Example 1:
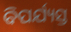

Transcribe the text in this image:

ବିପର୍ଯ୍ୟସ୍ତ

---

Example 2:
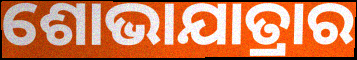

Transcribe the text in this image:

ଶୋଭାଯାତ୍ରାର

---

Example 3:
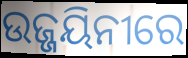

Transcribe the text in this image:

ଉଜ୍ଜୟିନୀରେ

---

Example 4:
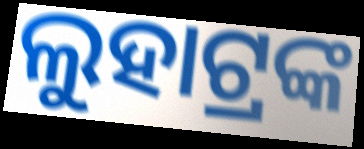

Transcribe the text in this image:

ଲୁହାଟ୍ରଙ୍କ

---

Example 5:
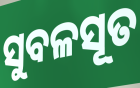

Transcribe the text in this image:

ସୁବଳସୂତ